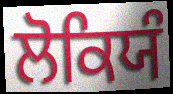
ਲੋਕਿਯੰ